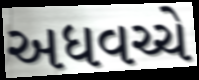
અધવચ્ચે